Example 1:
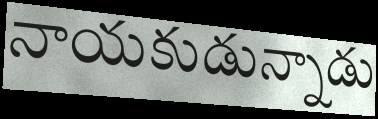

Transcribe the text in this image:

నాయకుడున్నాడు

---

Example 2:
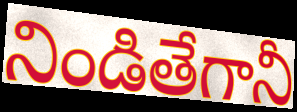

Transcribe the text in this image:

నిండితేగానీ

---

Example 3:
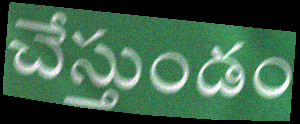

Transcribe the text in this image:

చేస్తుండం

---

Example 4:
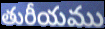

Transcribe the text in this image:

తురీయము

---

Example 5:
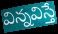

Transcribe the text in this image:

విన్నవిస్తే